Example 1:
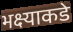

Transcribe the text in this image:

भक्ष्याकडे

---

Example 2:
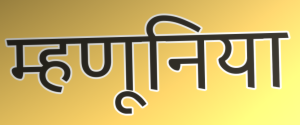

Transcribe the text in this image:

म्हणूनिया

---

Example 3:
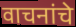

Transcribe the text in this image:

वाचनांचे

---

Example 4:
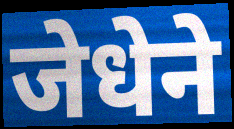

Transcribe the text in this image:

जेधेने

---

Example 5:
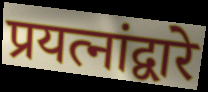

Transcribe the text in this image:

प्रयत्नांद्वारे